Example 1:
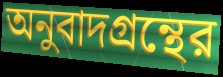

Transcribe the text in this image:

অনুবাদগ্রন্থের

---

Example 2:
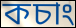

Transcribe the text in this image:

কচাং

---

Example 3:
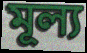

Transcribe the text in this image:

মূল্য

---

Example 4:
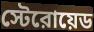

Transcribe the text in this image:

স্টেরোয়েড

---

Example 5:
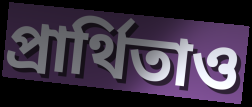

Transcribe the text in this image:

প্রার্থিতাও